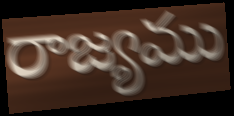
రాజ్యము